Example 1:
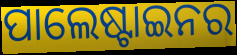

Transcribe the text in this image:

ପାଲେଷ୍ଟାଇନର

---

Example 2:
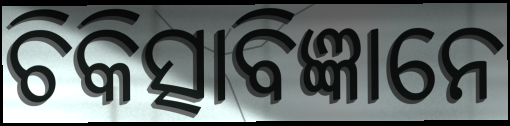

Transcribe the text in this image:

ଚିକିତ୍ସାବିଜ୍ଞାନେ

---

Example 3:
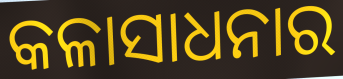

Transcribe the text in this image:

କଳାସାଧନାର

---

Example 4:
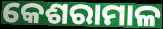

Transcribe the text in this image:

କେଶରାମାଳ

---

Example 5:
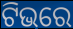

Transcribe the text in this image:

ଟିଭରେ